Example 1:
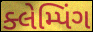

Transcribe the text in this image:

ક્લેમ્પિંગ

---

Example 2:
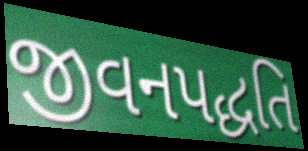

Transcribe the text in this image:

જીવનપદ્ધતિ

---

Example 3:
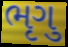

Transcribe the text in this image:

ભૃગુ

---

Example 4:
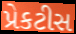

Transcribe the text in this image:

પ્રેકટીસ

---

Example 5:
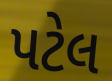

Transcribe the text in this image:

પટેલ